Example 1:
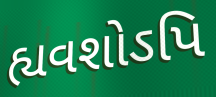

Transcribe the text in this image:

હ્યવશોઽપિ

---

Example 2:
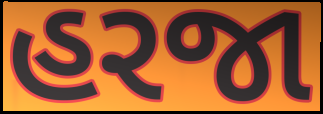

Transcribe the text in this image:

હરજા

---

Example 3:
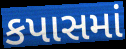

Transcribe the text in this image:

કપાસમાં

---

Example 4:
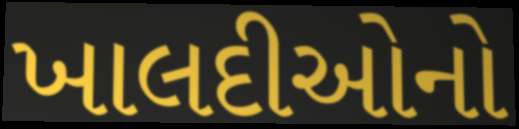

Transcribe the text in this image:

ખાલદીઓનો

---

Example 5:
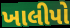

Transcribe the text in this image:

ખાલીપો